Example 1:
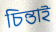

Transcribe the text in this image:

চিন্তাই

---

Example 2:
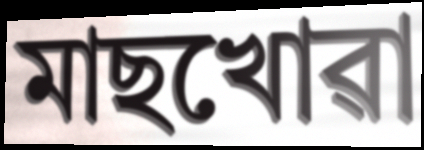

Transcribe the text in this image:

মাছখোৱা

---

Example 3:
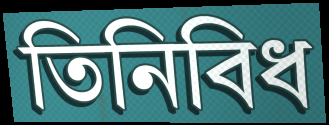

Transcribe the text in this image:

তিনিবিধ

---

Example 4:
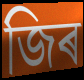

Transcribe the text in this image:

জিৰ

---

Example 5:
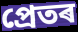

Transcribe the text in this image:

প্ৰেতৰ